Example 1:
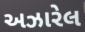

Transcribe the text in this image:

અઝારેલ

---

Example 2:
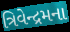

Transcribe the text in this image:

ત્રિવેન્દ્રમના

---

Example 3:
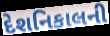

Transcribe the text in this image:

દેશનિકાલની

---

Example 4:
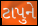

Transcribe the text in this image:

ટાપુને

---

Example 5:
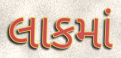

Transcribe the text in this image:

લાકમાં